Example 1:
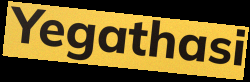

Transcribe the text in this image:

Yegathasi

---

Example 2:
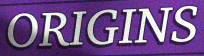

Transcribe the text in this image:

ORIGINS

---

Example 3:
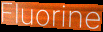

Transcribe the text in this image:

Fluorine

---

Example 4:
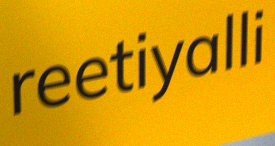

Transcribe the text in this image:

reetiyalli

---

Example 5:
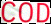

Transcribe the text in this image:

COD